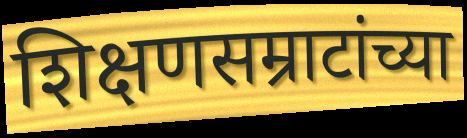
शिक्षणसम्राटांच्या